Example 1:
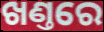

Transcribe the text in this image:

ଖଣ୍ତରେ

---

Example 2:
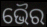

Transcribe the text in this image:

ଭୈର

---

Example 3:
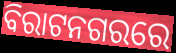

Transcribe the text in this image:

ବିରାଟନଗରରେ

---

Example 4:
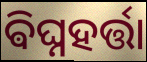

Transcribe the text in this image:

ଵିଘ୍ନହର୍ତ୍ତା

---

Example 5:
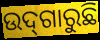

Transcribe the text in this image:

ଉଦ୍‌ଗାରୁଛି